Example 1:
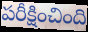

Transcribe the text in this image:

పరీక్షించింది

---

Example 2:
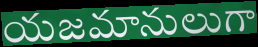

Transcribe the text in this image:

యజమానులుగా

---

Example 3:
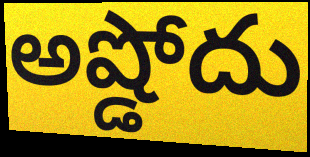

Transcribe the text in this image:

అష్డోదు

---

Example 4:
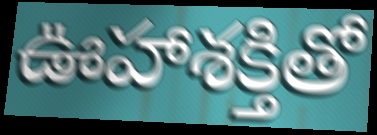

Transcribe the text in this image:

ఊహాశక్తితో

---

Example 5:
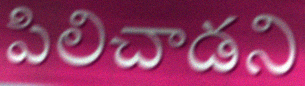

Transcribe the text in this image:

పిలిచాడని